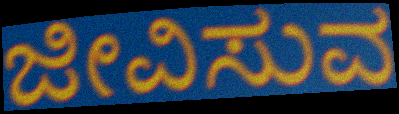
ಜೀವಿಸುವ